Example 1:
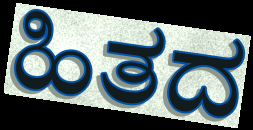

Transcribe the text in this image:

ಹಿತದ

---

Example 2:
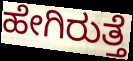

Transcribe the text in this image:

ಹೇಗಿರುತ್ತೆ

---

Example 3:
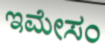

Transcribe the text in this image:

ಇಮೇಸಂ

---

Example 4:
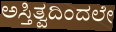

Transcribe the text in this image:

ಅಸ್ತಿತ್ವದಿಂದಲೇ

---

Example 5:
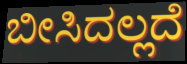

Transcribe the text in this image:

ಬೀಸಿದಲ್ಲದೆ